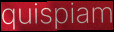
quispiam